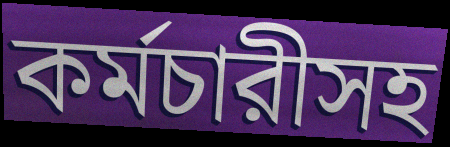
কর্মচারীসহ